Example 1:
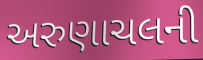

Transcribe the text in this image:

અરુણાચલની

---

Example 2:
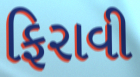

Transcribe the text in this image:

ફિરાવી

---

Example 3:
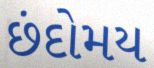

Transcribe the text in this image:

છંદોમય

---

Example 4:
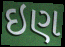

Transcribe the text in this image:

ઇણ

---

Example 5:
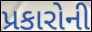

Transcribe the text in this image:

પ્રકારોની